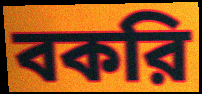
বকরি